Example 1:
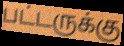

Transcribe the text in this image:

பட்டருக்கு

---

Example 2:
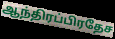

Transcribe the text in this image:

ஆந்திரப்பிரதேச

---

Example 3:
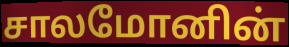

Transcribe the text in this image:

சாலமோனின்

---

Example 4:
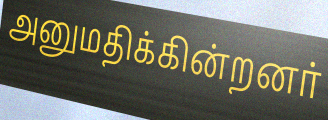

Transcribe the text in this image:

அனுமதிக்கின்றனர்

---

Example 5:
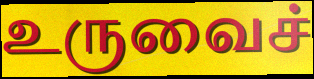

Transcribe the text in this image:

உருவைச்